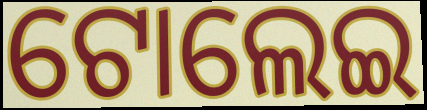
ଟୋଲେଇ